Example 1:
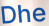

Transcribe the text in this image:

Dhe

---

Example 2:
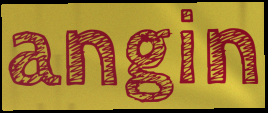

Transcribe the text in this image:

angin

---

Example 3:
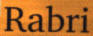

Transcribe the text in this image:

Rabri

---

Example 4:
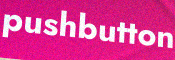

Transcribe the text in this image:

pushbutton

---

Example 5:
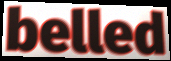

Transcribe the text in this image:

belled